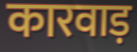
कारवाड़